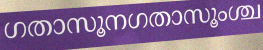
ഗതാസൂനഗതാസൂംശ്ച